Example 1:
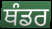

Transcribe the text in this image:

ਥੰਡਰ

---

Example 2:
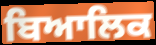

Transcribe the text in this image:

ਬਿਆਲਿਕ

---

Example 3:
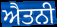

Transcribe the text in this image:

ਐਤਨੀ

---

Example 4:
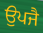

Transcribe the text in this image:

ਉਪਜੈ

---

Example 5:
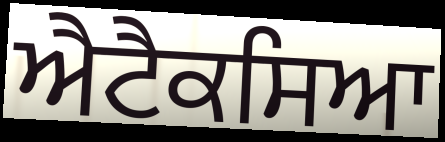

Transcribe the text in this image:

ਐਟੈਕਸਿਆ